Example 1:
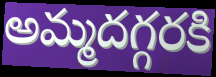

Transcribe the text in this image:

అమ్మదగ్గరకి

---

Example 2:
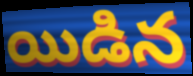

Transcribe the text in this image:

యిడిన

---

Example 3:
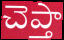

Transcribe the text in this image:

చెప్తా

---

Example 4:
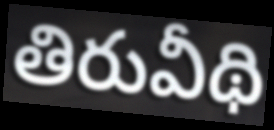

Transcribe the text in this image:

తిరువీథి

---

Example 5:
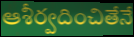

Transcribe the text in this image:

ఆశీర్వదించితేనే